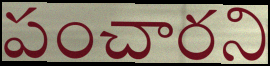
పంచారని